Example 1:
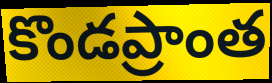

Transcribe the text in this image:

కొండప్రాంత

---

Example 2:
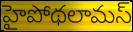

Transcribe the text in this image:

హైపోథలామస్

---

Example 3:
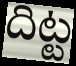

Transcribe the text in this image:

దిట్ట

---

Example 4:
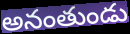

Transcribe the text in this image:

అనంతుండు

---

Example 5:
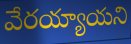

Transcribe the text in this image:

వేరయ్యాయని